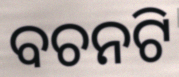
ବଚନଟି